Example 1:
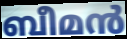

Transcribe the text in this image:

ബീമൻ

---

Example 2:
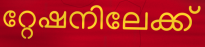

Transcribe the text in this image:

റ്റേഷനിലേക്ക്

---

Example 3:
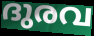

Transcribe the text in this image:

ദുരവ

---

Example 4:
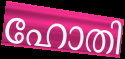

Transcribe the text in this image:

ഹോതി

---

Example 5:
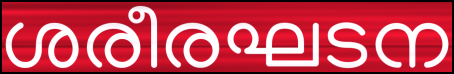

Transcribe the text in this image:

ശരീരഘടന